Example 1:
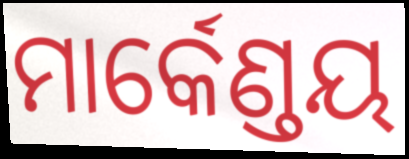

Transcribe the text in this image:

ମାର୍କେଣ୍ଡୟ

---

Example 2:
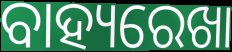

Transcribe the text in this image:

ବାହ୍ୟରେଖା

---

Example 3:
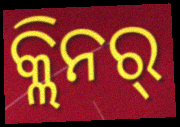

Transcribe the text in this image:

କ୍ଲିନର୍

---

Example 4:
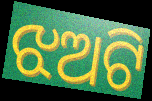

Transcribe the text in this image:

ଝଅଟି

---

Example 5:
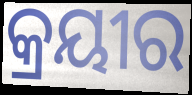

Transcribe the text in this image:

କ୍ରୟୀର